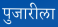
पुजारीला